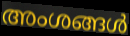
അംശങ്ങൾ